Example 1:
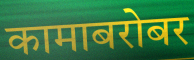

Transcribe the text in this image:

कामाबरोबर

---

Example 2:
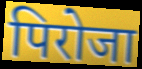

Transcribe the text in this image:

पिरोजा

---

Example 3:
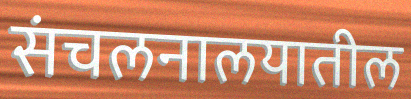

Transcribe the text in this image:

संचलनालयातील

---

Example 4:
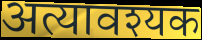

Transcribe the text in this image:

अत्यावश्यक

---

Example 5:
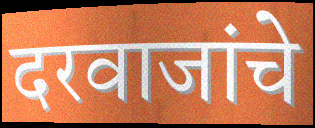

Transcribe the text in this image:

दरवाजांचे